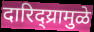
दारिद्य्रामुळे